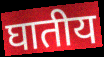
घातीय